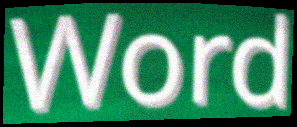
Word